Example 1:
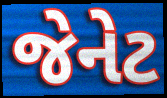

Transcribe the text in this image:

જેનેટ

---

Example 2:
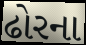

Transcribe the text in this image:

ઢોરના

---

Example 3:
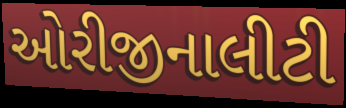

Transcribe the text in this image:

ઓરીજીનાલીટી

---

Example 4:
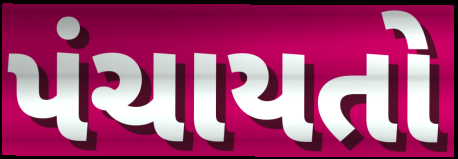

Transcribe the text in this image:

પંચાયતો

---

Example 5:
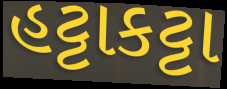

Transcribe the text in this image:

હટ્ટાકટ્ટા